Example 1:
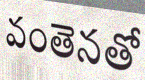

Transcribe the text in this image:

వంతెనతో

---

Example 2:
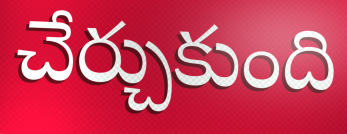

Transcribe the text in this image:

చేర్చుకుంది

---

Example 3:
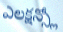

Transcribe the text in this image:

ఎలక్షన్స్లో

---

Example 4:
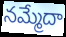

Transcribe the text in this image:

నమ్మేదా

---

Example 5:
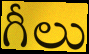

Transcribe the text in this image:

గీలు